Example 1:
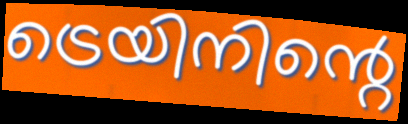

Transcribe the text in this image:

ട്രെയിനിന്റെ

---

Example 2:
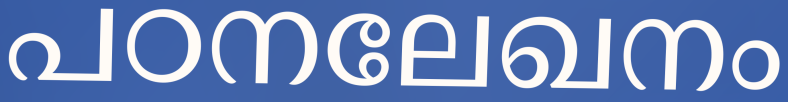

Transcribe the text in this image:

പഠനലേഖനം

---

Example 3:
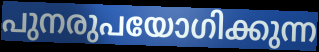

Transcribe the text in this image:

പുനരുപയോഗിക്കുന്ന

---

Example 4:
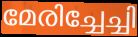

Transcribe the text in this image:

മേരിച്ചേച്ചി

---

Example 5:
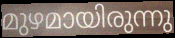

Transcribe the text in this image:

മുഴമായിരുന്നു